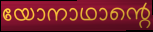
യോനാഥാന്റെ